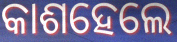
କାଶହେଲେ